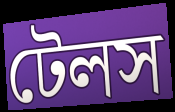
টেলস